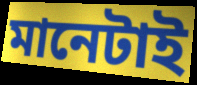
মানেটাই